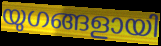
യുഗങ്ങളായി